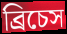
ব্রিচেস